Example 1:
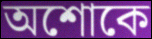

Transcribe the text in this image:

অশোকে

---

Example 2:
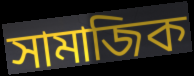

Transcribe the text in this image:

সামাজিক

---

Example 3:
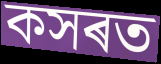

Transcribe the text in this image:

কসৰত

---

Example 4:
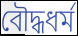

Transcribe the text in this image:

বৌদ্ধধৰ্ম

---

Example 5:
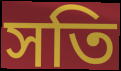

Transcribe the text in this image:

সতি